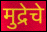
मुद्रेचे